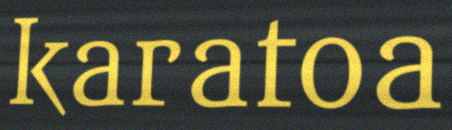
karatoa